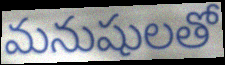
మనుషులతో